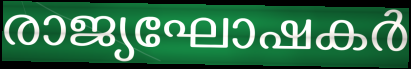
രാജ്യഘോഷകർ